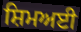
ਸ਼ਿਮਅਈ